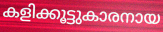
കളിക്കൂട്ടുകാരനായ